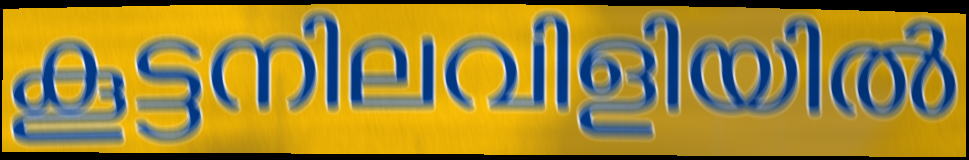
കൂട്ടനിലവിളിയിൽ